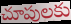
చూపులకు